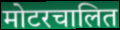
मोटरचालित